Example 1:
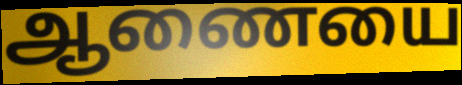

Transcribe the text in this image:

ஆணையை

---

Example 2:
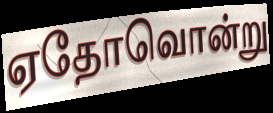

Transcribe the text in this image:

ஏதோவொன்று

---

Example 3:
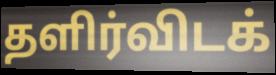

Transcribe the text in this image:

தளிர்விடக்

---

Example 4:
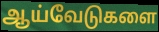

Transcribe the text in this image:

ஆய்வேடுகளை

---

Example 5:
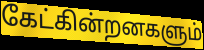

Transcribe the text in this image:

கேட்கின்றனகளும்